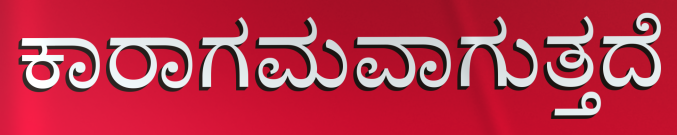
ಕಾರಾಗಮವಾಗುತ್ತದೆ